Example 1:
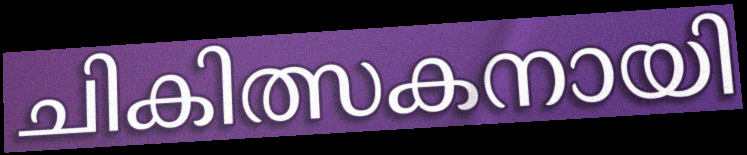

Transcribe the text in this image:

ചികിത്സകനായി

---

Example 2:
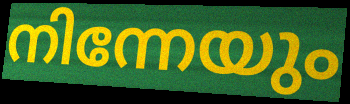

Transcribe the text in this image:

നിന്നേയും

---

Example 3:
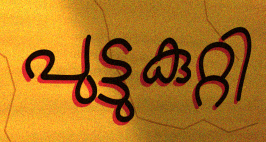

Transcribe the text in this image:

പുട്ടുകുറ്റി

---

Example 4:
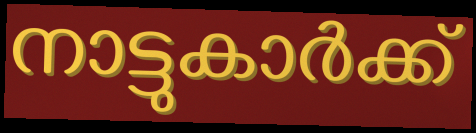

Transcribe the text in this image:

നാട്ടുകാർക്ക്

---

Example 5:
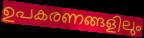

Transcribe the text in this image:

ഉപകരണങ്ങളിലും